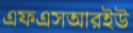
এফএসআরইউ